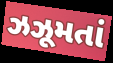
ઝઝૂમતાં